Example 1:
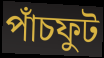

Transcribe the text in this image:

পাঁচফুট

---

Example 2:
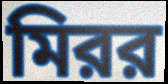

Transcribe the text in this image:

মিরর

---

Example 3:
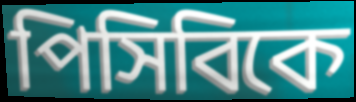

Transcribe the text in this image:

পিসিবিকে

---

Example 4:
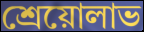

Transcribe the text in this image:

শ্রেয়োলাভ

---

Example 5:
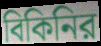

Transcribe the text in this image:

বিকিনির